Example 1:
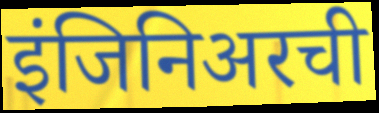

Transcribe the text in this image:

इंजिनिअरची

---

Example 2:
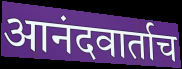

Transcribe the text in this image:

आनंदवार्ताच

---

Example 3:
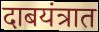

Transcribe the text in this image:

दाबयंत्रात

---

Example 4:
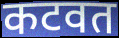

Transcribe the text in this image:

कटवत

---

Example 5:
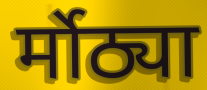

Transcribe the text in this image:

र्मोठ्या